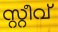
സ്റ്റീവ്